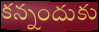
కన్నందుకు